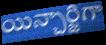
యిన్చార్జిగా